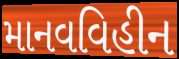
માનવવિહીન